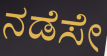
ನಡೆಸೇ